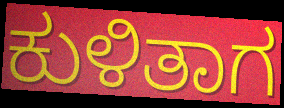
ಕುಳಿತಾಗ